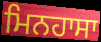
ਮਿਨਹਾਸਾ